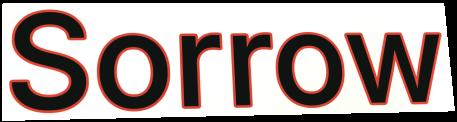
Sorrow